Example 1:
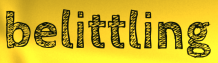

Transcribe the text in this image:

belittling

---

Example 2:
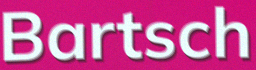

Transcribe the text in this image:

Bartsch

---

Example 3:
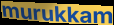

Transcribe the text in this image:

murukkam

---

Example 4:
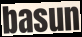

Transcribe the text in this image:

basun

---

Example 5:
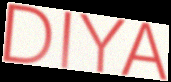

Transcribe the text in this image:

DIYA